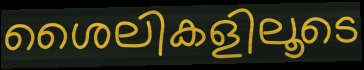
ശൈലികളിലൂടെ